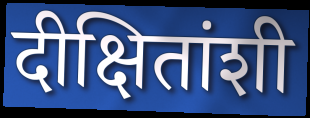
दीक्षितांशी